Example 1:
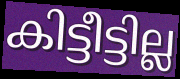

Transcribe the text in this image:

കിട്ടീട്ടില്ല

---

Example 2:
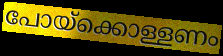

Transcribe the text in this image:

പോയ്ക്കൊള്ളണം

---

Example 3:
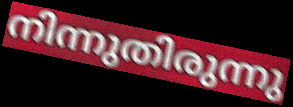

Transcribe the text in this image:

നിന്നുതിരുന്നു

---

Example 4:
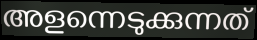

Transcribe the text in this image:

അളന്നെടുക്കുന്നത്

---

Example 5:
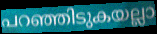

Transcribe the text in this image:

പറഞ്ഞിടുകയല്ലാ